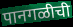
पानगळीची